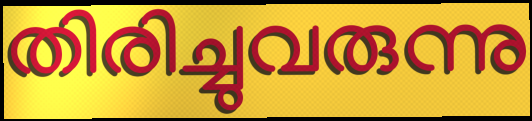
തിരിച്ചുവരുന്നു